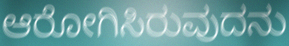
ಆರೋಗಿಸಿರುವುದನು